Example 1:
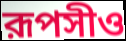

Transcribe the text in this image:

রূপসীও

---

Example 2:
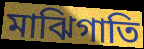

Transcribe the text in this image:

মাঝিগাতি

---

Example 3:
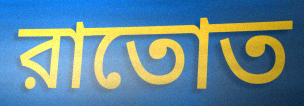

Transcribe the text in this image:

রাতোত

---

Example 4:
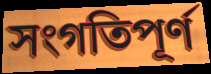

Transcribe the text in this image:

সংগতিপূর্ণ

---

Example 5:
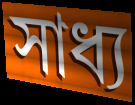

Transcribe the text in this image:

সাধ্য